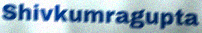
Shivkumragupta